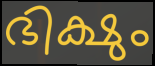
ഭിക്ഷും